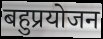
बहुप्रयोजन